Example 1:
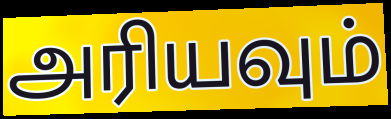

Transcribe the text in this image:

அரியவும்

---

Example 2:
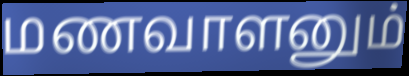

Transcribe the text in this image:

மணவாளனும்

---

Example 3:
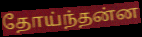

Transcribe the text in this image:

தோய்ந்தன்ன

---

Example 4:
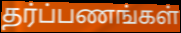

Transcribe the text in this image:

தர்ப்பணங்கள்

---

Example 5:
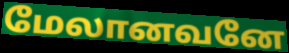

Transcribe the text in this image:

மேலானவனே